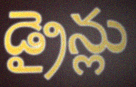
డ్రైన్లు